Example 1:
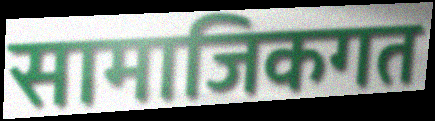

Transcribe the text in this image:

सामाजिकगत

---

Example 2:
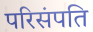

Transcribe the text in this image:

परिसंपति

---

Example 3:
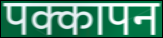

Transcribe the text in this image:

पक्कापन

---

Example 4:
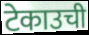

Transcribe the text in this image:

टेकाउची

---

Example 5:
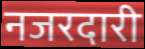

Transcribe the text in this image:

नजरदारी